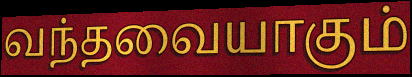
வந்தவையாகும்